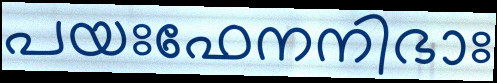
പയഃഫേനനിഭാഃ